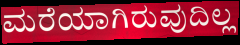
ಮರೆಯಾಗಿರುವುದಿಲ್ಲ